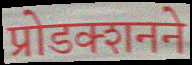
प्रोडक्शनने